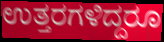
ಉತ್ತರಗಳಿದ್ದರೂ